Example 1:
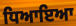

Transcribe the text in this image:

ਧਿਆਇਆ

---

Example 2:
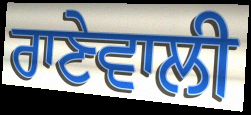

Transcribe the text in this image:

ਰਾਣੇਵਾਲੀ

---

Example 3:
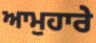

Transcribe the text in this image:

ਆਮੁਹਾਰੇ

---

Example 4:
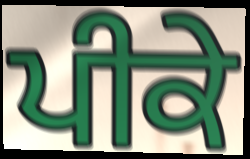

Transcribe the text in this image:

ਪੀਕੇ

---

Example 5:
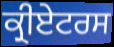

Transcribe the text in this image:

ਕ੍ਰੀਏਟਰਸ